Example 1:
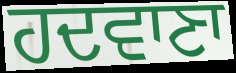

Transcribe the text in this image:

ਹਦਵਾਣਾ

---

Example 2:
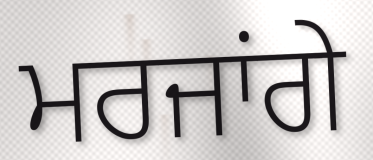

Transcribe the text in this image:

ਮਰਜਾਂਗੇ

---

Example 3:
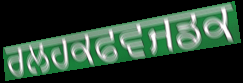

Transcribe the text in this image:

ਰਲਹਕਫਵਜਡਕ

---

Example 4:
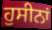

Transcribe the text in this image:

ਹੁਸੀਨਾਂ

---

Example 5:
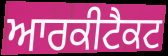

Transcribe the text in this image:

ਆਰਕੀਟੈਕਟ